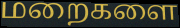
மறைகளை